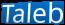
Taleb